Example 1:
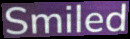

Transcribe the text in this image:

Smiled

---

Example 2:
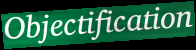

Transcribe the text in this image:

Objectification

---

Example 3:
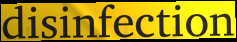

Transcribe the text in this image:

disinfection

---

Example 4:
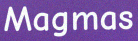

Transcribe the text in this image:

Magmas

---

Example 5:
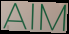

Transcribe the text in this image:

AIM